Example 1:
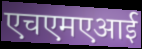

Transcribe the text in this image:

एचएमएआई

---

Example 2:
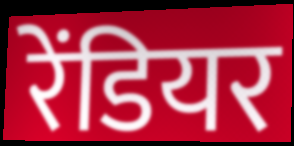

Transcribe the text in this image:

रेंडियर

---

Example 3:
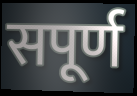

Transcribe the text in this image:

सपूर्ण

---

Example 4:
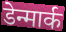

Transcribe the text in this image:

डेन्मार्क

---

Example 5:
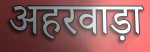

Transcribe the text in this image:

अहरवाड़ा